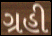
ગ્રહી